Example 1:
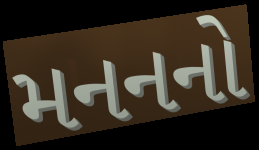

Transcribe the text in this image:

મનનનો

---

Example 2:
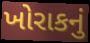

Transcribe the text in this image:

ખોરાકનું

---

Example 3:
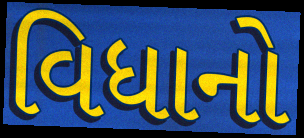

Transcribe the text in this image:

વિધાનો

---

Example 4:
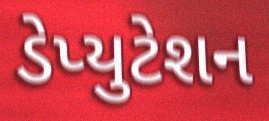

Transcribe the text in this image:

ડેપ્યુટેશન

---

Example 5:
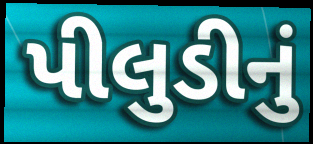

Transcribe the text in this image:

પીલુડીનું